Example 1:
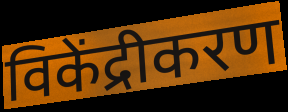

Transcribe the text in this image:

विकेंद्रीकरण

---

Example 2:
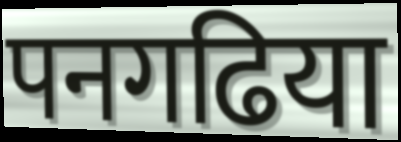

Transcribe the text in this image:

पनगढिया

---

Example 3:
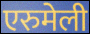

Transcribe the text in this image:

एरुमेली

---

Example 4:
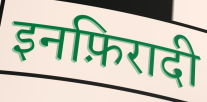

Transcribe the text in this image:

इनफ़िरादी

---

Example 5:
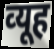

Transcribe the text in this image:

व्‍यूह